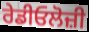
ਰੇਡੀਓਲੋਜ਼ੀ